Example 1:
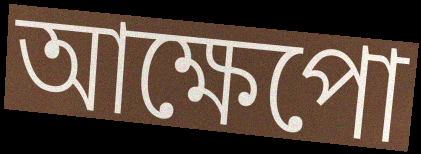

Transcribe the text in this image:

আক্ষেপো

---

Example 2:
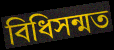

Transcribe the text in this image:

বিধিসন্মত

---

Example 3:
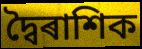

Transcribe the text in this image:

দ্বৈৰাশিক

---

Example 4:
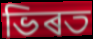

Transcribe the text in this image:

ভিৰত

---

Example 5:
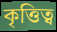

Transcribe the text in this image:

কৃত্তিত্ব